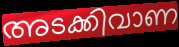
അടക്കിവാണ